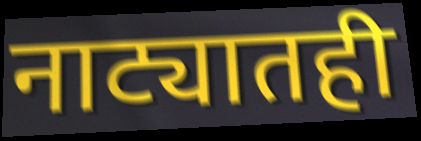
नाट्यातही